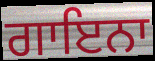
ਗਾਇਨਾ